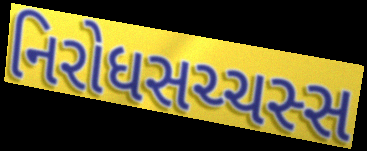
નિરોધસચ્ચસ્સ